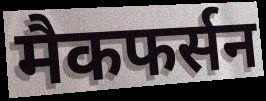
मैकफर्सन